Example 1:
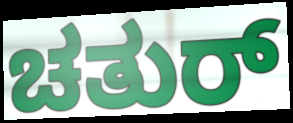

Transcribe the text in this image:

ಚತುರ್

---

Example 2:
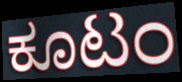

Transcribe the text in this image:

ಕೂಟಂ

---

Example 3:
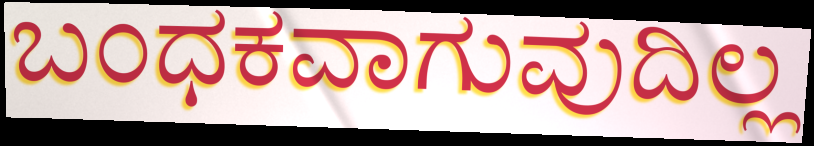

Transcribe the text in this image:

ಬಂಧಕವಾಗುವುದಿಲ್ಲ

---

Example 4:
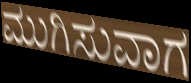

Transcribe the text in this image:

ಮುಗಿಸುವಾಗ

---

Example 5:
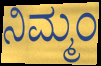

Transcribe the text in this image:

ನಿಮ್ಮಂ